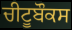
ਚੀਟੂਬੌਕਸ